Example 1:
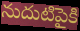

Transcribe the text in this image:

నుదుటిపైకి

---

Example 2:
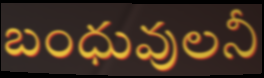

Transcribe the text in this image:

బంధువులనీ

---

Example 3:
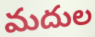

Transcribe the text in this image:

మదుల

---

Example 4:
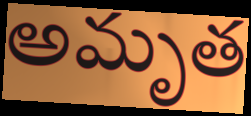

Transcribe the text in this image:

అమృత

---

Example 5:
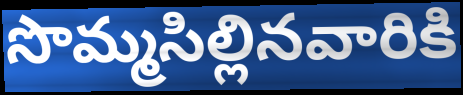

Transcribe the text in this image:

సొమ్మసిల్లినవారికి